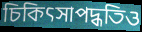
চিকিৎসাপদ্ধতিও